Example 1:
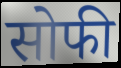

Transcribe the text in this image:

सोफी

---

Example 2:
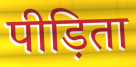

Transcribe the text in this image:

पीड़िता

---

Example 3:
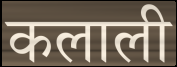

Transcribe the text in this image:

कलाली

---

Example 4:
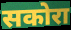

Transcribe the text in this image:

सकोरा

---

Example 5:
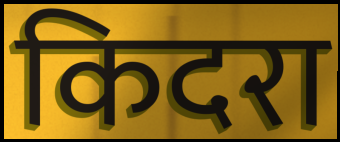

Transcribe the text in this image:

किदरा